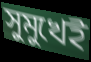
সুমুখেই